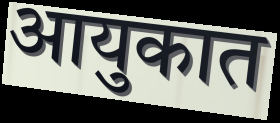
आयुकात